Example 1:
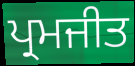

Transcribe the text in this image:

ਪ੍ਰਮਜੀਤ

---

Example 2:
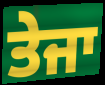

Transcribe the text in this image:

ਤੇਜਾ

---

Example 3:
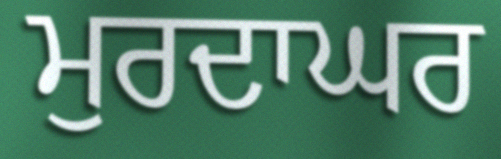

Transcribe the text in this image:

ਮੁਰਦਾਘਰ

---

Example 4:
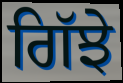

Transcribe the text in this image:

ਗਿੱਝੇ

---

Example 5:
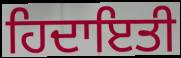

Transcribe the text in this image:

ਹਿਦਾਇਤੀ